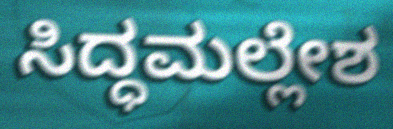
ಸಿದ್ಧಮಲ್ಲೇಶ